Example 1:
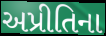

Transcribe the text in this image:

અપ્રીતિના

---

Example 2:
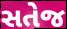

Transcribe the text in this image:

સતેજ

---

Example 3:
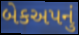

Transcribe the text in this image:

બેકઅપનું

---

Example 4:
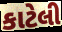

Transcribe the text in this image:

કાટેલી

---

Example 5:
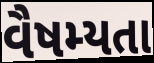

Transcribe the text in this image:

વૈષમ્યતા